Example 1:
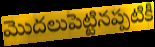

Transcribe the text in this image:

మొదలుపెట్టినప్పటికీ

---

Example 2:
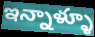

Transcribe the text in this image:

ఇన్నాళ్ళూ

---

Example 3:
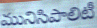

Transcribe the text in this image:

మునిసిపాలిటీ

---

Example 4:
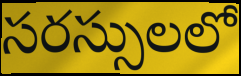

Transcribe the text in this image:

సరస్సులలో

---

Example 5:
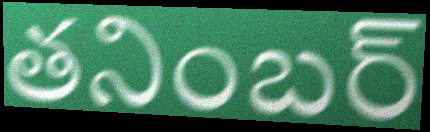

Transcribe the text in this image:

తనింబర్